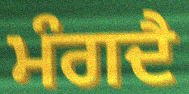
ਮੰਗਦੈ